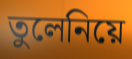
তুলেনিয়ে